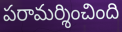
పరామర్శించింది